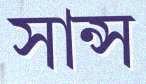
সান্স